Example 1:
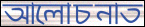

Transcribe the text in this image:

আলোচনাত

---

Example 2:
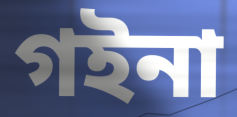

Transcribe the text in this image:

গইনা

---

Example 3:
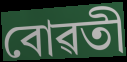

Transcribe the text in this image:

বোৱতী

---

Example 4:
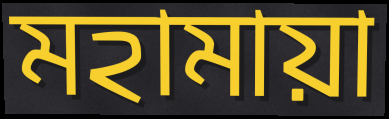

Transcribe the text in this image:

মহামায়া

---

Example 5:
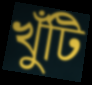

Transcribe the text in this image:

খুঁটি